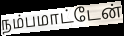
நம்பமாட்டேன்